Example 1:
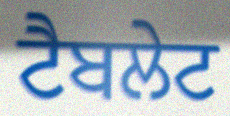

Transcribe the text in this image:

ਟੈਬਲੇਟ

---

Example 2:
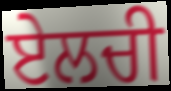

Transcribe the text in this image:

ਏਲਚੀ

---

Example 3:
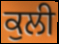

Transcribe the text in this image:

ਕੁਲੀ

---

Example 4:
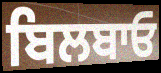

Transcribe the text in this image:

ਬਿਲਬਾਓ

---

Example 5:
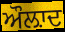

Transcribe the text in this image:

ਔਲ਼ਾਦ